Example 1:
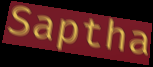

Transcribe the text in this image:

Saptha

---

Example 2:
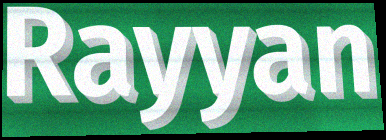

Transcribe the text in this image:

Rayyan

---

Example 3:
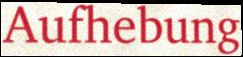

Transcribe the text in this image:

Aufhebung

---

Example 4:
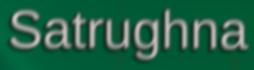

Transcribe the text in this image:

Satrughna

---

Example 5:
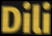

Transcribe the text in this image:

Dili